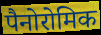
पैनोरोमिक